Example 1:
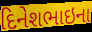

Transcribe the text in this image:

દિનેશભાઇના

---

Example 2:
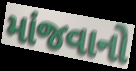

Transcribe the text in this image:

માંજવાનો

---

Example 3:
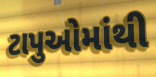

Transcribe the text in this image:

ટાપુઓમાંથી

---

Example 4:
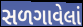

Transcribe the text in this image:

સળગાવેલાં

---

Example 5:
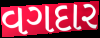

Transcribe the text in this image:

વગદાર